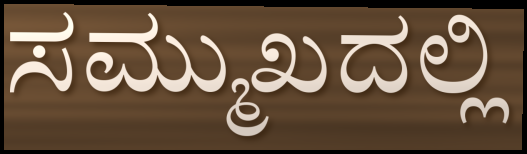
ಸಮ್ಮುಖದಲ್ಲಿ